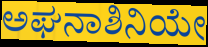
ಅಘನಾಶಿನಿಯೇ